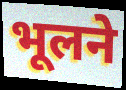
भूलने